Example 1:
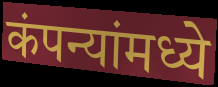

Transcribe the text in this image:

कंपन्यांमध्ये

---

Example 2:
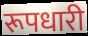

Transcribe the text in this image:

रूपधारी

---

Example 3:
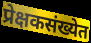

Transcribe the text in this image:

प्रेक्षकसंख्येत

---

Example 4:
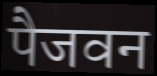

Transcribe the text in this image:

पैजवन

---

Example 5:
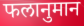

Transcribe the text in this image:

फलानुमान